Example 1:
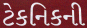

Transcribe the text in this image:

ટેકનિકની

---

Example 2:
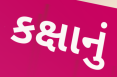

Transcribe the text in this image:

કક્ષાનું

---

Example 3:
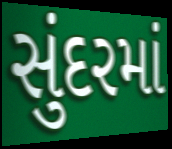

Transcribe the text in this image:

સુંદરમાં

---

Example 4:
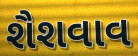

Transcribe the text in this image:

શૈશવાવ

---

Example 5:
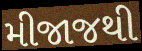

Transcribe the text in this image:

મીજાજથી